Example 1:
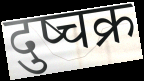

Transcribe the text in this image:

दुष्चक्र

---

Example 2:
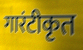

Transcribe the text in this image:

गारंटीकृत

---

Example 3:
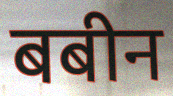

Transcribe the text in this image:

बबीन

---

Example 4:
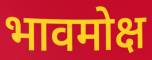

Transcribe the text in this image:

भावमोक्ष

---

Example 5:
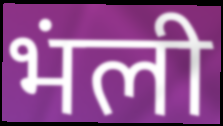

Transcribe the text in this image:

भंली